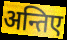
अन्तिए